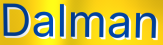
Dalman